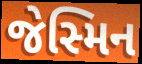
જેસ્મિન